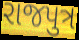
રાજપુત્ર